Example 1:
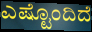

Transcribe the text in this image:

ಎಷ್ಟೊಂದಿದೆ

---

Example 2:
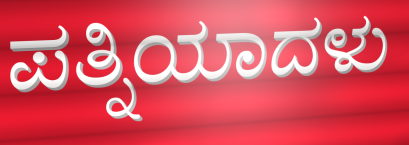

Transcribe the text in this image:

ಪತ್ನಿಯಾದಳು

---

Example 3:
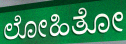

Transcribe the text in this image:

ಲೋಹಿತೋ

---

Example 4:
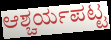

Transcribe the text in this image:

ಆಶ್ಚರ್ಯಪಟ್ಟ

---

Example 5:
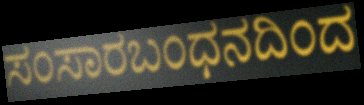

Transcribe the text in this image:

ಸಂಸಾರಬಂಧನದಿಂದ